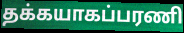
தக்கயாகப்பரணி